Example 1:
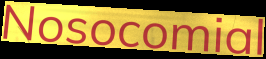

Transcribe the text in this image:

Nosocomial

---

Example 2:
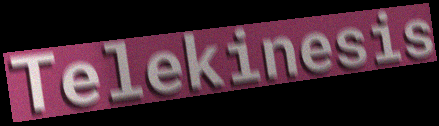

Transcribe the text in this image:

Telekinesis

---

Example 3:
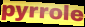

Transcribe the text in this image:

pyrrole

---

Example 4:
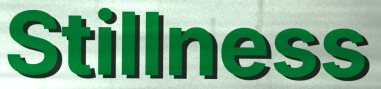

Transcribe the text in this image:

Stillness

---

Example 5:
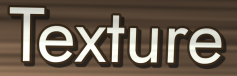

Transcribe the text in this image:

Texture